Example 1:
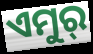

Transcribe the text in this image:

ଏମୁର୍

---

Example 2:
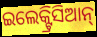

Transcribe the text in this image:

ଇଲେକ୍ଟ୍ରିସିଆନ୍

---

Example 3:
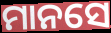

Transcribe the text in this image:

ମାନସେ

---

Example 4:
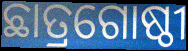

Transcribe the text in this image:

ଛାତ୍ରଗୋଷ୍ଠୀ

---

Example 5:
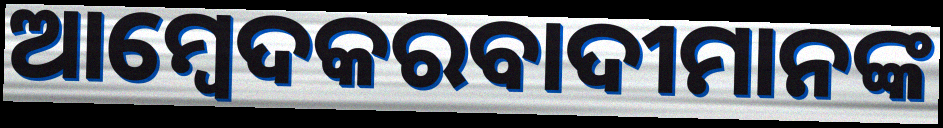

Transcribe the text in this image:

ଆମ୍ବେଦକରବାଦୀମାନଙ୍କ